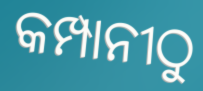
କମ୍ପାନୀଠୁ